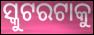
ସ୍କୁଟରଟାକୁ